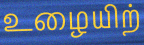
உழையிற்